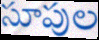
సూపుల